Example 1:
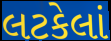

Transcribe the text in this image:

લટકેલાં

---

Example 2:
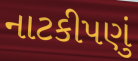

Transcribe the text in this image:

નાટકીપણું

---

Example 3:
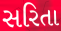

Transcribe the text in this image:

સરિતા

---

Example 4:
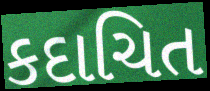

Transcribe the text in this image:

કદાચિત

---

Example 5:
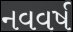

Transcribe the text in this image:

નવવર્ષ